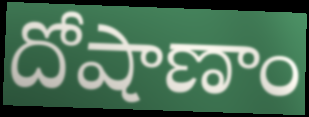
దోషాణాం